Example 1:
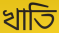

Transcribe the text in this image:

খাতি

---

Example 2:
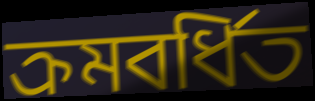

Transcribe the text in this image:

ক্ৰমবৰ্ধিত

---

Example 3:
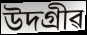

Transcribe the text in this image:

উদগ্ৰীৱ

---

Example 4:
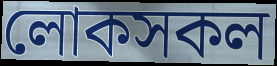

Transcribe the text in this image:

লোকসকল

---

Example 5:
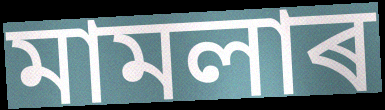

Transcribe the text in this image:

মামলাৰ